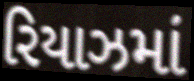
રિયાઝમાં